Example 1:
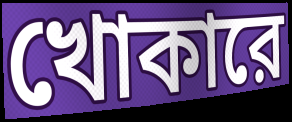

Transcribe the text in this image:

খোকারে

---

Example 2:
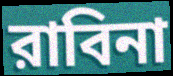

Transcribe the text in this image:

রাবিনা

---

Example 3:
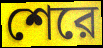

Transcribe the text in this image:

শেরে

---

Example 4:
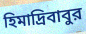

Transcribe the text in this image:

হিমাদ্রিবাবুর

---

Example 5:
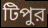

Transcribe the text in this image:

টিপুর